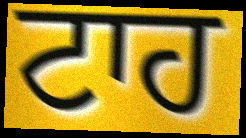
ਟਾਹ